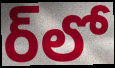
ర్‌లో